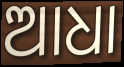
ଆଧା